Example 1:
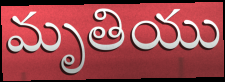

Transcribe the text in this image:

మృతియు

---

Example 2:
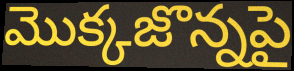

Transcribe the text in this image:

మొక్కజొన్నపై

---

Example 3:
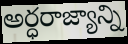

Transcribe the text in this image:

అర్ధరాజ్యాన్ని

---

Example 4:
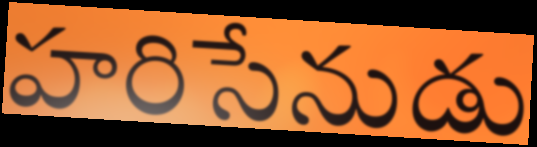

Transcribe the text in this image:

హరిసేనుడు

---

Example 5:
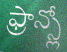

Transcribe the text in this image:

ఫ్రాన్స్లో